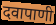
दवापाणी